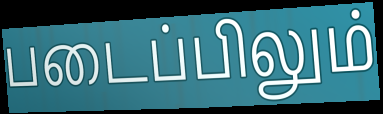
படைப்பிலும்